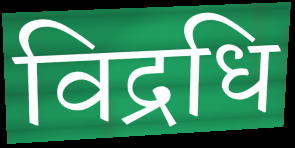
विद्रधि